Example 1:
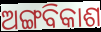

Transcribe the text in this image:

ଅଙ୍ଗବିକାଶ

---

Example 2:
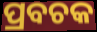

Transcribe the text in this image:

ପ୍ରବଚକ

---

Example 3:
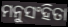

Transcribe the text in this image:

ମନୁସଂହିତା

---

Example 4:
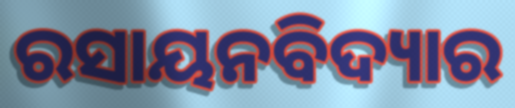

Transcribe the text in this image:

ରସାୟନବିଦ୍ୟାର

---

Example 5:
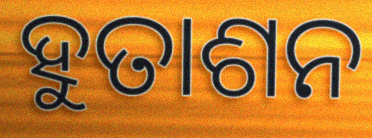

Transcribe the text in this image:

ହୁତାଶନ